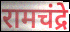
रामचंद्रे